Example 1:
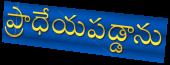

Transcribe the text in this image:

ప్రాధేయపడ్డాను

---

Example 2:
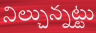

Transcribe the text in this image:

నిల్చున్నట్టు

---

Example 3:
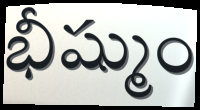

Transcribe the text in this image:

భీష్ముం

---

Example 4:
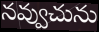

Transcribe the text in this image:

నవ్వుచును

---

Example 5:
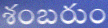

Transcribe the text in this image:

శంబరుం